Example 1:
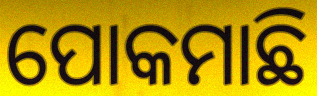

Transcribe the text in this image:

ପୋକମାଛି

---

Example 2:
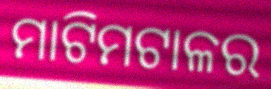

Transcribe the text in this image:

ମାଟିମଟାଳର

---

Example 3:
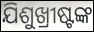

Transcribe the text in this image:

ଯିଶୁଖ୍ରୀଷ୍ଟଙ୍କ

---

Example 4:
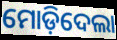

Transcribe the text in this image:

ମୋଡ଼ିଦେଲା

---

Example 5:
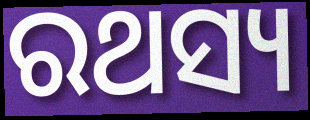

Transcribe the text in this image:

ରଥସ୍ୟ